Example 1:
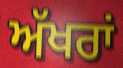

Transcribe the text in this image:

ਅੱਖਰਾਂ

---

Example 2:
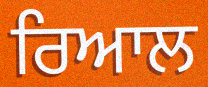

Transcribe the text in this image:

ਰਿਆਲ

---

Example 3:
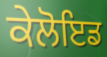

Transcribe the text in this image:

ਕੇਲੋਇਡ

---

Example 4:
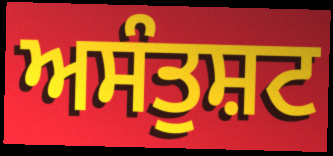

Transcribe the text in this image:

ਅਸੰਤੁਸ਼ਟ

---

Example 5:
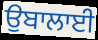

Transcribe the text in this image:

ਉਬਾਲਾਈ